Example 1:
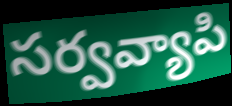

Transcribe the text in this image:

సర్వవ్యాపి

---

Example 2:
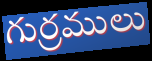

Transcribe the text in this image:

గుర్రములు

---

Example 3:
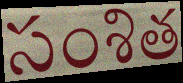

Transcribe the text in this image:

సంశిత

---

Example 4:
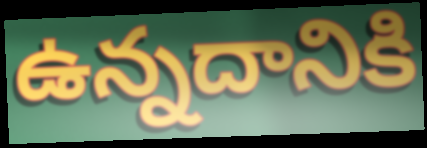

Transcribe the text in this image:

ఉన్నదానికి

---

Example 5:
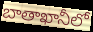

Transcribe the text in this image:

బాతాఖానీలో